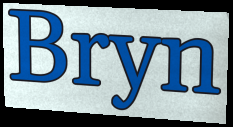
Bryn